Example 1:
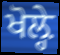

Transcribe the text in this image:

ਖੋਲ਼੍ਹੇ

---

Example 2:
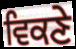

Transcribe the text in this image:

ਵਿਕਣੇ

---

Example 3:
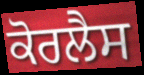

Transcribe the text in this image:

ਕੋਰਲੈਸ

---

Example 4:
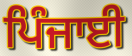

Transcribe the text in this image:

ਪਿੰਜਾਈ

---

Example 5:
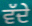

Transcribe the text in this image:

ਵੱਦੇ